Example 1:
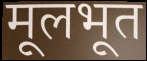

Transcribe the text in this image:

मूलभूत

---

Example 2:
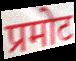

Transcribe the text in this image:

प्रमोट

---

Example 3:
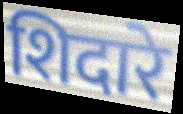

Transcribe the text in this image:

शिदारे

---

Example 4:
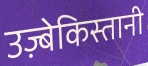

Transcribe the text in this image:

उज़्बेकिस्तानी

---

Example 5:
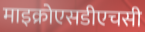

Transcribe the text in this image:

माइक्रोएसडीएचसी